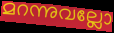
മറന്നുവല്ലോ